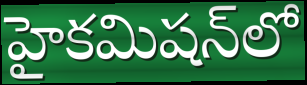
హైకమిషన్‌లో